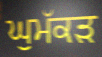
ਘੁਮੱਕੜ